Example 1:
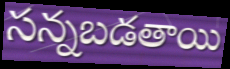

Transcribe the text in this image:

సన్నబడతాయి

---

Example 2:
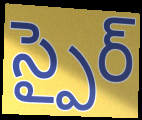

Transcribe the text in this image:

స్పైర్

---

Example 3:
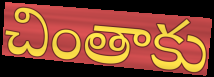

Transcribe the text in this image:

చింతాకు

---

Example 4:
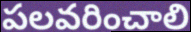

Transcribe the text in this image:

పలవరించాలి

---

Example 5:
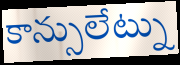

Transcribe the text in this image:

కాన్సులేట్ను